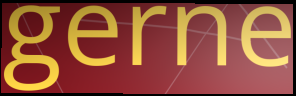
gerne